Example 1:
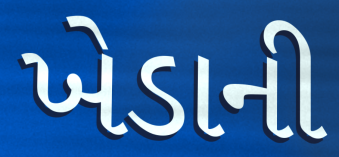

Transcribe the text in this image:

ખેડાની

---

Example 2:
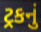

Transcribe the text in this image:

ટ્રકનું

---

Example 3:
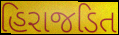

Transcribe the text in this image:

હિરાજડિત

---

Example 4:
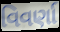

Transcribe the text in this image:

વિવર્ણા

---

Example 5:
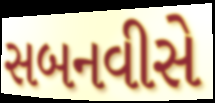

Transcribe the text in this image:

સબનવીસે